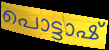
പൊട്ടാഷ്